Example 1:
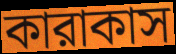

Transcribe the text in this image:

কারাকাস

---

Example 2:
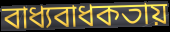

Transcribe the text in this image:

বাধ্যবাধকতায়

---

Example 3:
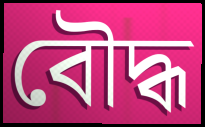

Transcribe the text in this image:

বৌদ্ধ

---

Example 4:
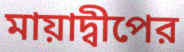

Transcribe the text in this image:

মায়াদ্বীপের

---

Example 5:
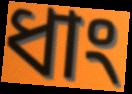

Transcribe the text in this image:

ধাং